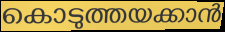
കൊടുത്തയക്കാൻ